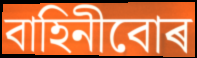
বাহিনীবোৰ